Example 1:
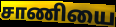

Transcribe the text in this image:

சாணியை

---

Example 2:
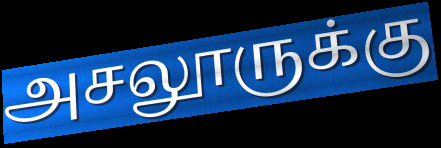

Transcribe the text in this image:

அசலூருக்கு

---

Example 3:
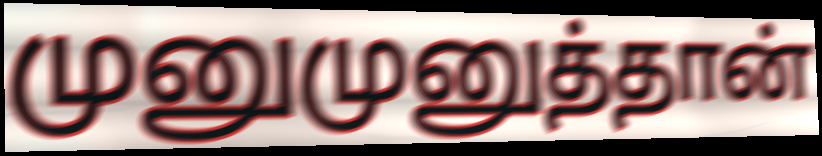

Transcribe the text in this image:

முனுமுனுத்தான்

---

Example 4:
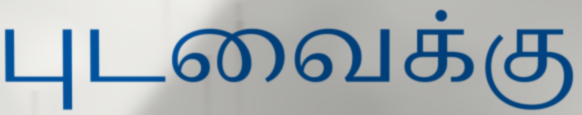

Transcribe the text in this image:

புடவைக்கு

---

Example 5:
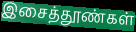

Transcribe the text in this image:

இசைத்தூண்கள்